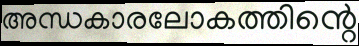
അന്ധകാരലോകത്തിന്റെ